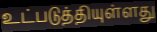
உட்படுத்தியுள்ளது